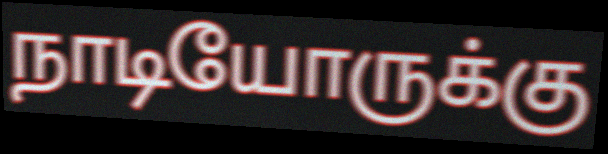
நாடியோருக்கு